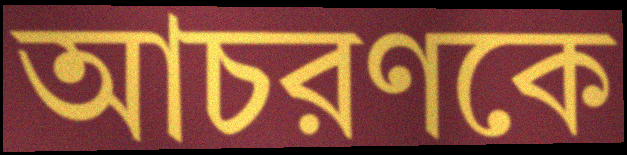
আচরণকে